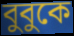
বুবুকে